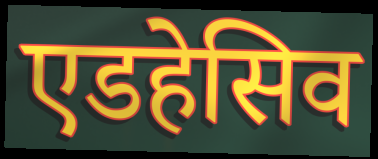
एडहेसिव